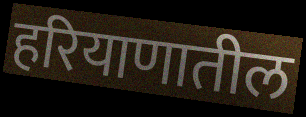
हरियाणातील